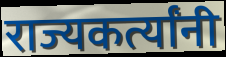
राज्यकर्त्यांनी